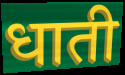
धाती